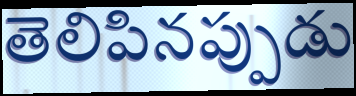
తెలిపినప్పుడు